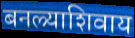
बनल्याशिवाय